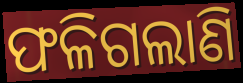
ଫଳିଗଲାଣି